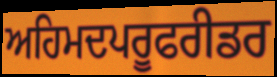
ਅਹਿਮਦਪਰੂਫਰੀਡਰ